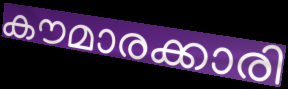
കൗമാരക്കാരി